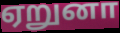
ஏறுனா